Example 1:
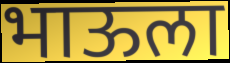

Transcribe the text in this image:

भाऊला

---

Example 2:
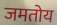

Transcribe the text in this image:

जमतोय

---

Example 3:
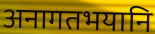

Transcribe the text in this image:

अनागतभयानि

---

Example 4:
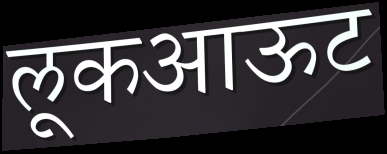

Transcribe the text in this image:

लूकआऊट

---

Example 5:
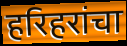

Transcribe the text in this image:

हरिहरांचा